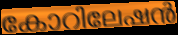
കോറിലേഷൻ